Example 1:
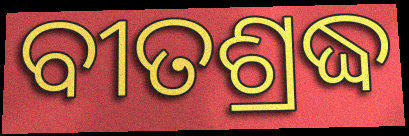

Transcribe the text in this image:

ବୀତଶ୍ରଦ୍ଧ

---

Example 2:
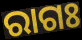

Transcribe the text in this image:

ରାଗଃ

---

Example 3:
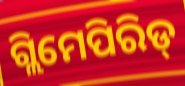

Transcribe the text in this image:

ଗ୍ଲିମେପିରିଡ୍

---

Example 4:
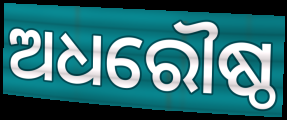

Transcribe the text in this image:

ଅଧରୌଷ୍ଠ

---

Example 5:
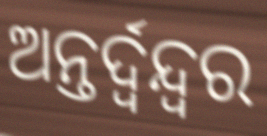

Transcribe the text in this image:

ଅନ୍ତର୍ଦ୍ୱନ୍ଦ୍ୱର